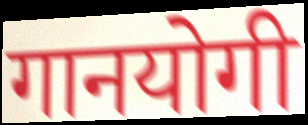
गानयोगी